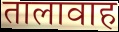
तालावाह